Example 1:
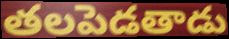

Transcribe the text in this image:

తలపెడతాడు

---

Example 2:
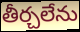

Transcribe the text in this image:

తీర్చలేను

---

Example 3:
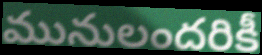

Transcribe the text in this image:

మునులందరికీ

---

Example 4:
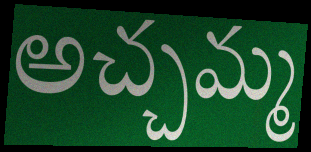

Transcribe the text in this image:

అచ్చమ్మ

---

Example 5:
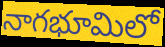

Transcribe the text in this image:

నాగభూమిలో